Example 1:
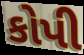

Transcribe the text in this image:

કોપી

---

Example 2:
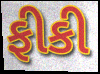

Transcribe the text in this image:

ફીકી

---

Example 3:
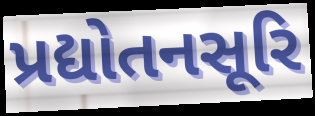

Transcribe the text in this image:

પ્રદ્યોતનસૂરિ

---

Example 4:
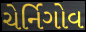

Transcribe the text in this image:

ચેર્નિગોવ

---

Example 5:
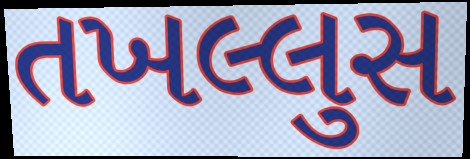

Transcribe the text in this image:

તખલ્લુસ